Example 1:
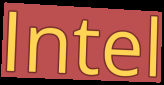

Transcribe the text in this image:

Intel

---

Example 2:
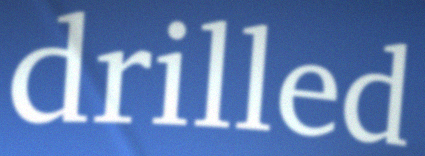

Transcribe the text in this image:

drilled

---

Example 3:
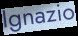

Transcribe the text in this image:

Ignazio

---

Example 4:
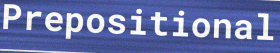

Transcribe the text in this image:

Prepositional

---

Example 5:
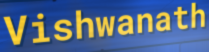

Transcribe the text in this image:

Vishwanath